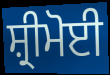
ਸ਼੍ਰੀਮੋਈ